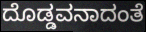
ದೊಡ್ಡವನಾದಂತೆ